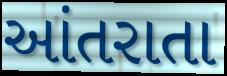
આંતરાતા